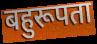
बहुरूपता